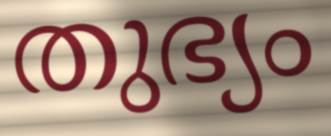
തുഭ്യം